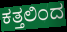
ಕತ್ತಲಿಂದ